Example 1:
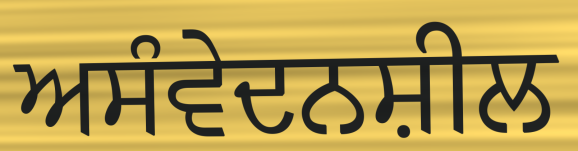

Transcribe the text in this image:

ਅਸੰਵੇਦਨਸ਼ੀਲ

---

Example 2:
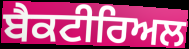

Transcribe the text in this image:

ਬੈਕਟੀਰਿਅਲ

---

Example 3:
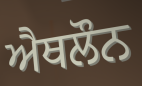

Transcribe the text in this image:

ਐਥਲੌਨ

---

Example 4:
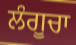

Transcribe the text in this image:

ਲੰਗੂਚਾ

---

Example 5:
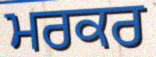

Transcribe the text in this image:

ਮਰਕਰ